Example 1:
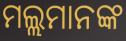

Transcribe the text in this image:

ମଲ୍ଲମାନଙ୍କ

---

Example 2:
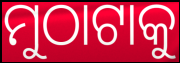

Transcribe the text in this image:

ମୁଠାଟାକୁ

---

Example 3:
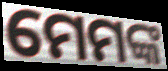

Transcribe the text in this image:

ମେମଙ୍କ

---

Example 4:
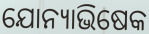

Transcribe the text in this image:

ଯୋନ୍ୟାଭିଷେକ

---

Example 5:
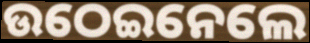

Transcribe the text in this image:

ଉଠେଇନେଲେ